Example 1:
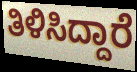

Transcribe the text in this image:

ತಿಳಿಸಿದ್ದಾರೆ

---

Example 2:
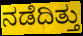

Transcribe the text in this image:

ನಡೆದಿತ್ತು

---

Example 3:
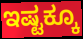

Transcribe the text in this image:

ಇಷ್ಟಕ್ಕೂ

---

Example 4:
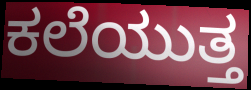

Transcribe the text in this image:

ಕಲೆಯುತ್ತ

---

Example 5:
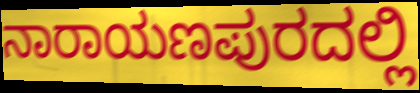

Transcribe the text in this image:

ನಾರಾಯಣಪುರದಲ್ಲಿ